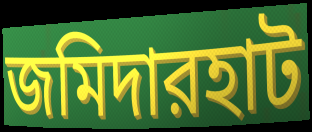
জমিদারহাট